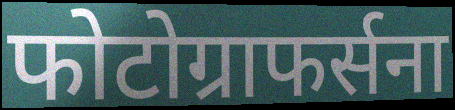
फोटोग्राफर्सना